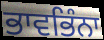
ਭਾਵਭਿੰਨਾ